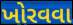
ખોરવવા